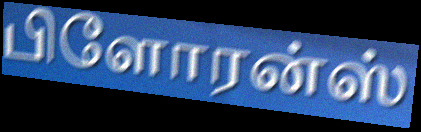
பிளோரன்ஸ்